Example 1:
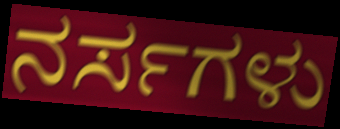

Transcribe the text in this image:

ನರ್ಸಗಳು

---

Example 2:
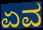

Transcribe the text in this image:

ಏವ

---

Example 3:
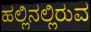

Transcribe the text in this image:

ಹಲ್ಲಿನಲ್ಲಿರುವ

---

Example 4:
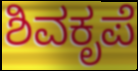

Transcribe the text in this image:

ಶಿವಕೃಪೆ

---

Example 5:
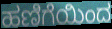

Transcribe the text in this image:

ಹಣಿಗೆಯಿಂದ